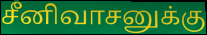
சீனிவாசனுக்கு